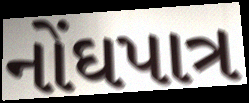
નોંઘપાત્ર